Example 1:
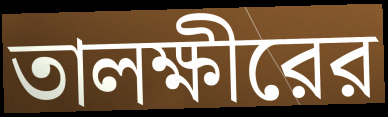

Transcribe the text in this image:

তালক্ষীরের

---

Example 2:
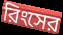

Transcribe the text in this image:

রিংসের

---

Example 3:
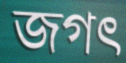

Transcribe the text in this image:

জগৎ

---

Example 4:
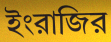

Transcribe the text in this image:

ইংরাজির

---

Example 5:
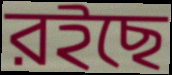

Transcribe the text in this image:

রইছে